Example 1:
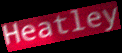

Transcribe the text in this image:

Heatley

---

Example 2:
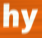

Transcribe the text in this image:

hy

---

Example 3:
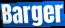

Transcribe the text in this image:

Barger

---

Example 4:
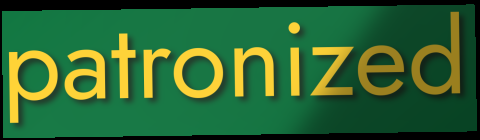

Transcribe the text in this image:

patronized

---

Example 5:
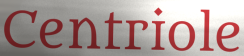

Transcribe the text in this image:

Centriole